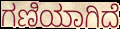
ಗಣಿಯಾಗಿದೆ